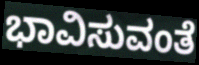
ಭಾವಿಸುವಂತೆ